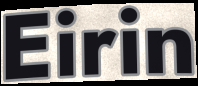
Eirin